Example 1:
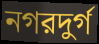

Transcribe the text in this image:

নগরদুর্গ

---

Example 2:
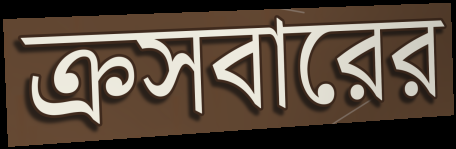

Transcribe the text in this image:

ক্রসবারের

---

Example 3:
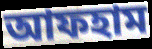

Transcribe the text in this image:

আফহাম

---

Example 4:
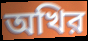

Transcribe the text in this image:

অখির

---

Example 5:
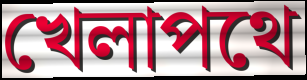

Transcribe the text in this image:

খেলাপথে